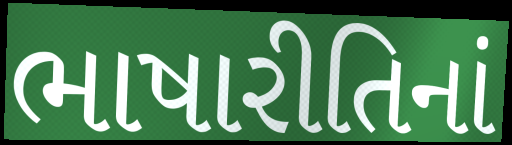
ભાષારીતિનાં